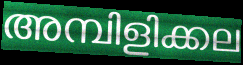
അമ്പിളിക്കല